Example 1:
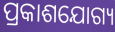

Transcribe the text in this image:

ପ୍ରକାଶଯୋଗ୍ୟ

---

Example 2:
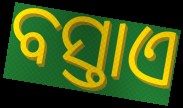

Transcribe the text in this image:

ବସ୍ତାଏ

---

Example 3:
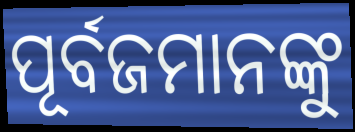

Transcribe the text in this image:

ପୂର୍ବଜମାନଙ୍କୁ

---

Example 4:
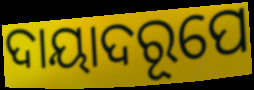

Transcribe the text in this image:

ଦାୟାଦରୂପେ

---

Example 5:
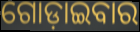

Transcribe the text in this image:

ଗୋଡ଼ାଇବାର